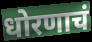
धोरणाचं